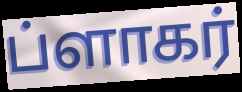
ப்ளாகர்